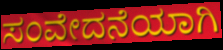
ಸಂವೇದನೆಯಾಗಿ